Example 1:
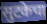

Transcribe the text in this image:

सुटकेचा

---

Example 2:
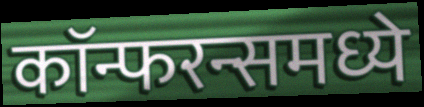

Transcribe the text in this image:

कॉन्फरन्समध्ये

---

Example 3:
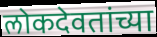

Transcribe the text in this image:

लोकदेवतांच्या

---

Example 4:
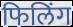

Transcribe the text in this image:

फिलिंग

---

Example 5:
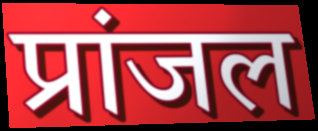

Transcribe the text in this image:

प्रांजल